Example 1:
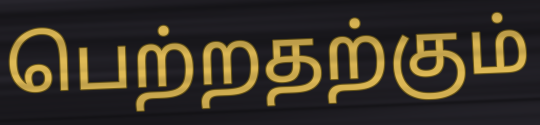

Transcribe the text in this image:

பெற்றதற்கும்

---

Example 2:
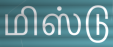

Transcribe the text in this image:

மிஸ்டு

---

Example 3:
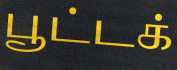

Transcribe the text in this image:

பூட்டக்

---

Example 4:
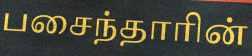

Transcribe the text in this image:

பசைந்தாரின்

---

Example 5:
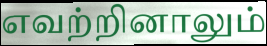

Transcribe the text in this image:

எவற்றினாலும்